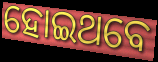
ହୋଇଥବେ